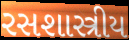
રસશાસ્ત્રીય